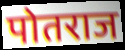
पोतराज